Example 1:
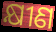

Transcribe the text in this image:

କ୍ଷୀଣ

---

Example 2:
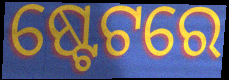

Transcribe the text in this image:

ଷ୍ଟେଟରେ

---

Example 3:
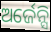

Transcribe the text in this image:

ଅର୍ଜେନ୍ସି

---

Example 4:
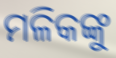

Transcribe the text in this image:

ମଳିକଙ୍କୁ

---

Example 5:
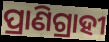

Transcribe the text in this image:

ପ୍ରାଣିଗ୍ରାହୀ